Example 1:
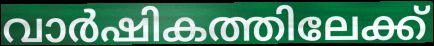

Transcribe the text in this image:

വാർഷികത്തിലേക്ക്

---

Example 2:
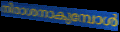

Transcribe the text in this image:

നിരാശനാകുമ്പോൾ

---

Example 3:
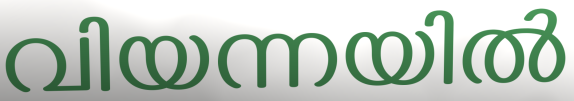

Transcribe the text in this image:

വിയന്നയിൽ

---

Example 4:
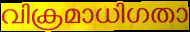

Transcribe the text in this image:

വിക്രമാധിഗതാ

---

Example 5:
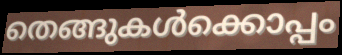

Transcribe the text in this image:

തെങ്ങുകൾക്കൊപ്പം